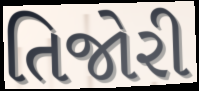
તિજોરી